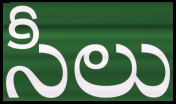
సీలు